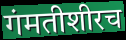
गंमतीशीरच